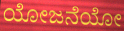
ಯೋಜನೆಯೋ